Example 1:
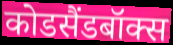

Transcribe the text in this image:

कोडसैंडबॉक्स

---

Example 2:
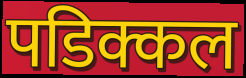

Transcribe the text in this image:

पडिक्कल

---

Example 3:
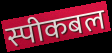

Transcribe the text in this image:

स्पीकबल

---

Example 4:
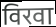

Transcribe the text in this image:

विरवा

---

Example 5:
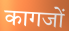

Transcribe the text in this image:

कागजों